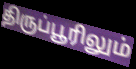
திருப்பூரிலும்